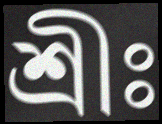
শ্রীঃ